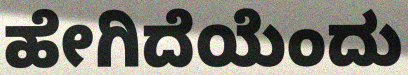
ಹೇಗಿದೆಯೆಂದು